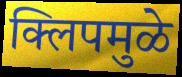
क्लिपमुळे